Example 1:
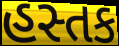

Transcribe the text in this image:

હસ્તક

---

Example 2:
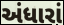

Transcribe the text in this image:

અંધારાં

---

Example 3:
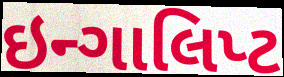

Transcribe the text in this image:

ઇન્ગાલિપ્ટ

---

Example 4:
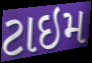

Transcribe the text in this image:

ટાઇમ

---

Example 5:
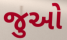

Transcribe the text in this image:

જુઓ